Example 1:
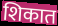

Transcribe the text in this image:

शिकात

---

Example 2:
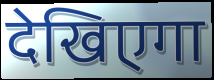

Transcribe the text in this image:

देखिएगा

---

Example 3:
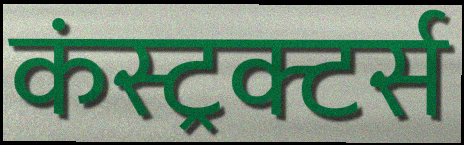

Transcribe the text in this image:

कंस्ट्रक्टर्स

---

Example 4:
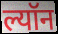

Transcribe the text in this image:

ल्यॉन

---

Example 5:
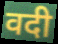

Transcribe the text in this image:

वदी